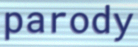
parody